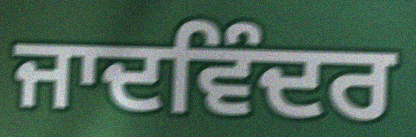
ਜਾਦਵਿੰਦਰ